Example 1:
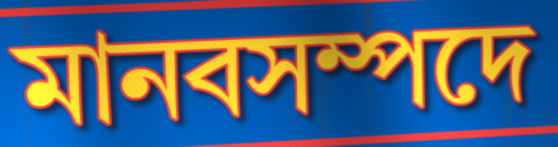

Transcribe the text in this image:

মানবসম্পদে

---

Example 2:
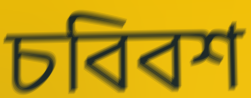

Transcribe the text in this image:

চবিবশ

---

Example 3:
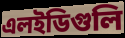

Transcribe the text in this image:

এলইডিগুলি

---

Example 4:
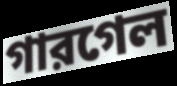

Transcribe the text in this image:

গারগেল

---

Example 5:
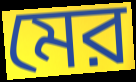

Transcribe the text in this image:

মের